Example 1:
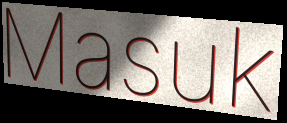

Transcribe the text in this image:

Masuk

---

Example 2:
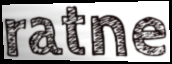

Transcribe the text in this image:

ratne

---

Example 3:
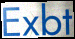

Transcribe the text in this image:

Exbt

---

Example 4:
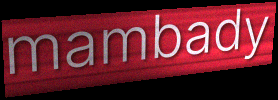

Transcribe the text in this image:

mambady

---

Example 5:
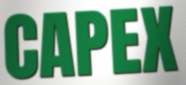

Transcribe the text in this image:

CAPEX